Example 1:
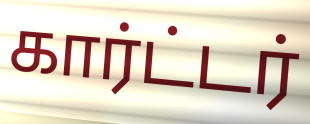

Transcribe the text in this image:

கார்ட்டர்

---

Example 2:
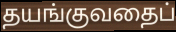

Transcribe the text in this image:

தயங்குவதைப்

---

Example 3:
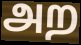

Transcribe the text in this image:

அற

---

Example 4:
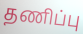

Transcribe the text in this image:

தணிப்பு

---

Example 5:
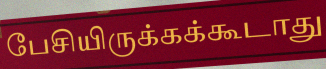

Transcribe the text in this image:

பேசியிருக்கக்கூடாது